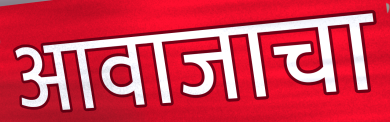
आवाजाचा